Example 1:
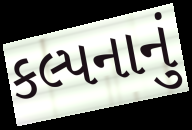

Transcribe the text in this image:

કલ્પનાનું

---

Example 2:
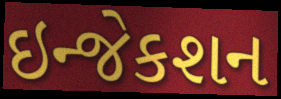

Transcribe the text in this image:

ઇન્જેકશન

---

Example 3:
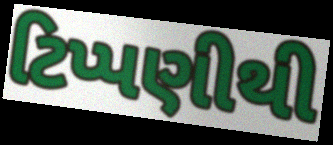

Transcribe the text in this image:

ટિપ્પણીથી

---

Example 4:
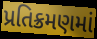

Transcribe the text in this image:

પ્રતિક્રમણમાં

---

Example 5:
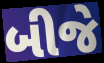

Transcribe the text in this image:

બીજે